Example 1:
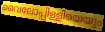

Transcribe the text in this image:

വൈലോപ്പിള്ളിയെയും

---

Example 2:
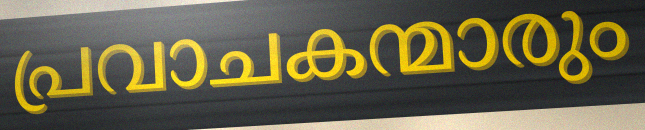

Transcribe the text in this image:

പ്രവാചകന്മാരും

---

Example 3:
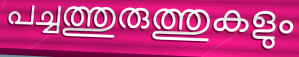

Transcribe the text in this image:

പച്ചത്തുരുത്തുകളും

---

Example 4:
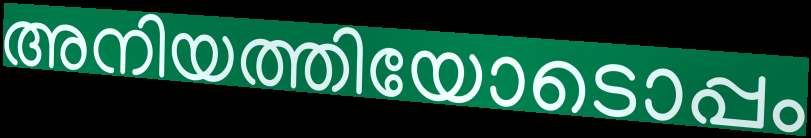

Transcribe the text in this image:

അനിയത്തിയോടൊപ്പം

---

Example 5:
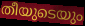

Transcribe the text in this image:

തീയുടെയും